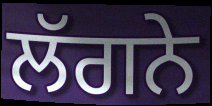
ਲੱਗਨੇ